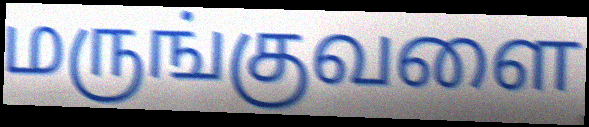
மருங்குவளை